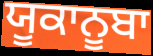
ਯੂਕਾਨੂਬਾ